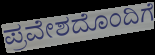
ಪ್ರವೇಶದೊಂದಿಗೆ